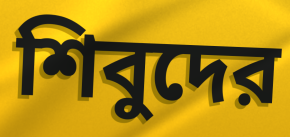
শিবুদের